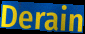
Derain